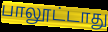
பாலூட்டாது